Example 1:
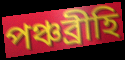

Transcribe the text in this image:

পঞ্চব্রীহি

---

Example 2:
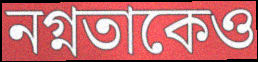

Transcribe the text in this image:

নগ্নতাকেও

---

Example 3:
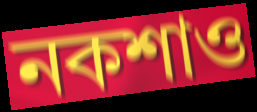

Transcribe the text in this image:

নকশাও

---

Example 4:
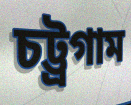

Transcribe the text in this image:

চট্ট্রগাম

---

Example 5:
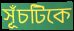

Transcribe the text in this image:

সূঁচটিকে